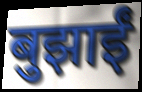
बुझाईं